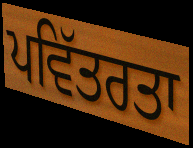
ਪਵਿੱਤਰਤਾ